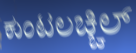
ಕುಂಟಲಚ್ಚಿಲ್